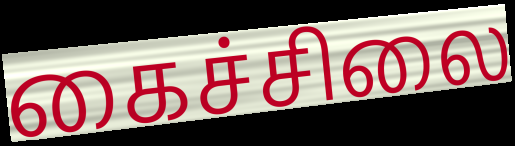
கைச்சிலை